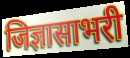
जिज्ञासाभरी